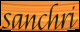
sanchri